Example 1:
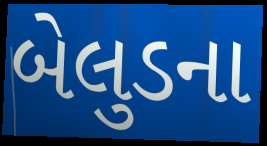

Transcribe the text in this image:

બેલુડના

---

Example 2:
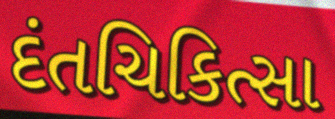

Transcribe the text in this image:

દંતચિકિત્સા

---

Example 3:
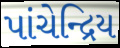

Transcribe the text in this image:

પાંચેન્દ્રિય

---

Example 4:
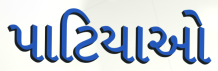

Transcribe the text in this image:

પાટિયાઓ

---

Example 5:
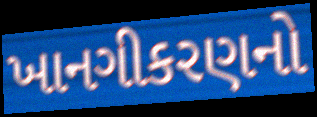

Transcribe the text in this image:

ખાનગીકરણનો